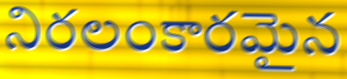
నిరలంకారమైన